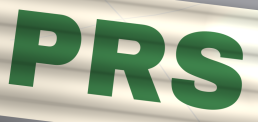
PRS